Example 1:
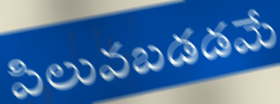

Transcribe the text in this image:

పిలువబడడమే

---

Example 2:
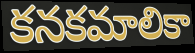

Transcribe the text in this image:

కనకమాలికా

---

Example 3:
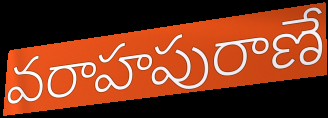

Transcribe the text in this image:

వరాహపురాణే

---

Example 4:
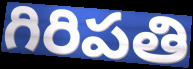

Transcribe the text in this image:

గిరిపతి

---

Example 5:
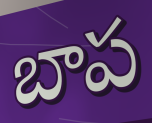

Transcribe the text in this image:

బాప